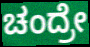
ಚಂದ್ರೇ